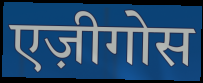
एज़ीगोस